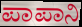
ಪಾಪಾನಿ